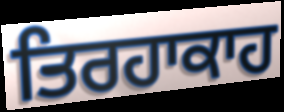
ਤਿਰਹਾਕਾਹ